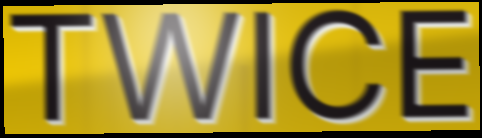
TWICE